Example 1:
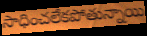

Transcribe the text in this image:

సాధించలేకపోతున్నాయి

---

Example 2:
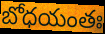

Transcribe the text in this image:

బోధయంతః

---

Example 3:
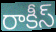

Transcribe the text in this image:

రాకీస్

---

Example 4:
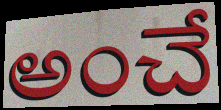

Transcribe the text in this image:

అంచే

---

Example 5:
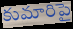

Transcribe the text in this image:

కుమారిపై